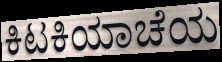
ಕಿಟಕಿಯಾಚೆಯ